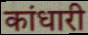
कांधारी